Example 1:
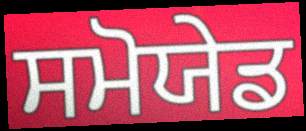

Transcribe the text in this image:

ਸਮੋਯੇਡ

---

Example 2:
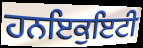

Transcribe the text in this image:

ਹਨਇਕੁਇਟੀ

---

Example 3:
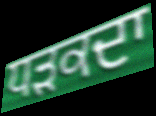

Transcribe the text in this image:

ਧੜਕਦਾ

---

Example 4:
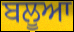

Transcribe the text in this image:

ਬਲੂਆ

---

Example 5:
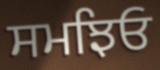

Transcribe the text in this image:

ਸਮਝਿਓ